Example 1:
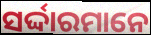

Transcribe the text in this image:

ସର୍ଦ୍ଦାରମାନେ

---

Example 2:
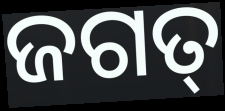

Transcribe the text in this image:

ଜଗତ୍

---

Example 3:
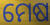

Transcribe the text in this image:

ମେଷ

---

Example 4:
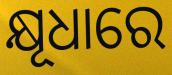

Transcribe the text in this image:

କ୍ଷୂଧାରେ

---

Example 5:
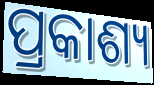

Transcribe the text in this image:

ପ୍ରକାଶ୍ୟ